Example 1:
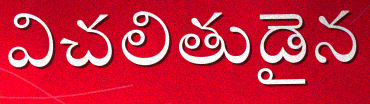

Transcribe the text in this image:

విచలితుడైన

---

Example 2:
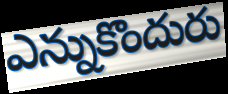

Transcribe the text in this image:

ఎన్నుకొందురు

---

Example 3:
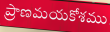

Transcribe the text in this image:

ప్రాణమయకోశము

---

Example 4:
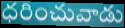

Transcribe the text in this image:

ధరించువాడు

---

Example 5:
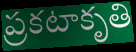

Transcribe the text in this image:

ప్రకటాకృతి